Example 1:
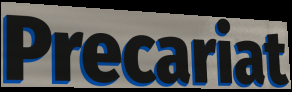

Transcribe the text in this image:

Precariat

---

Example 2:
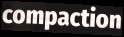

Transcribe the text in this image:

compaction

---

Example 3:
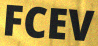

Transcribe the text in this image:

FCEV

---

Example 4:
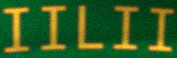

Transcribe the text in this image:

IILII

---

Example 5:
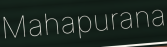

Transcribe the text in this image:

Mahapurana